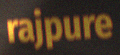
rajpure